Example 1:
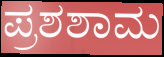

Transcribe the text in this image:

ಪ್ರಶಶಾಮ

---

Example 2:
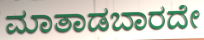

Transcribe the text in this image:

ಮಾತಾಡಬಾರದೇ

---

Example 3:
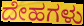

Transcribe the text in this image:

ದೇಹಗಳು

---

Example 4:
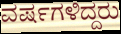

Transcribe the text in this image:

ವರ್ಷಗಳಿದ್ದರು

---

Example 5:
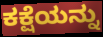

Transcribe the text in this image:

ಕಕ್ಷೆಯನ್ನು